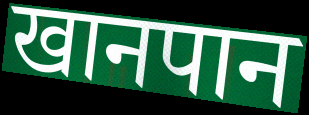
खानपान